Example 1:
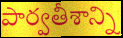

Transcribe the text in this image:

పార్వతీశాన్ని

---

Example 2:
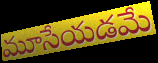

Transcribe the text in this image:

మూసేయడమే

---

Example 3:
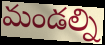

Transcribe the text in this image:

మండల్ని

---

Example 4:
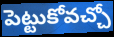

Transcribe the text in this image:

పెట్టుకోవచ్చో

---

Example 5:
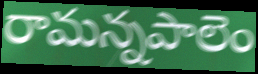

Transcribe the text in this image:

రామన్నపాలెం